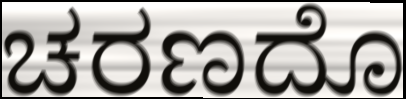
ಚರಣದೊ